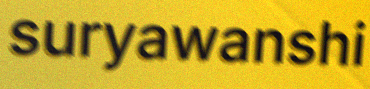
suryawanshi